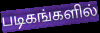
படிகங்களில்